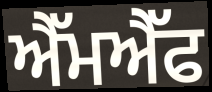
ਐੱਮਐੱਫ